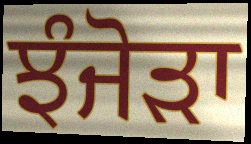
ਝੰਜੋੜਾ